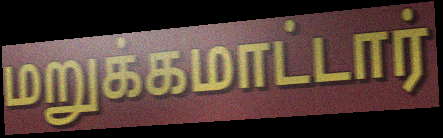
மறுக்கமாட்டார்